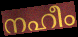
നഹീം